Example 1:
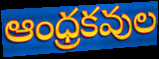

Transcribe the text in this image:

ఆంధ్రకవుల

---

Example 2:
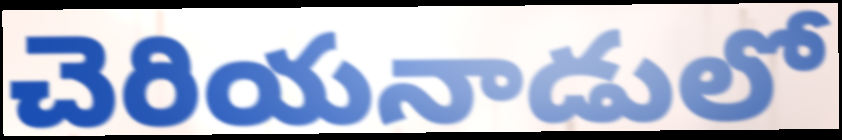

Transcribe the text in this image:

చెరియనాడులో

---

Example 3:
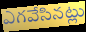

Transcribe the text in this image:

ఎగవేసినట్లు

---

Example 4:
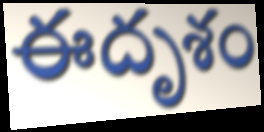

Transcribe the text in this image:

ఈదృశం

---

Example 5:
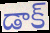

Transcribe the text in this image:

డాక్